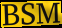
BSM